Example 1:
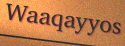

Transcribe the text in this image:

Waaqayyos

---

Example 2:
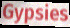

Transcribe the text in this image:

Gypsies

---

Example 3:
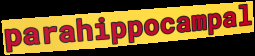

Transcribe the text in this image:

parahippocampal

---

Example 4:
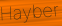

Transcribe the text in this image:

Hayber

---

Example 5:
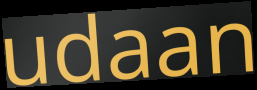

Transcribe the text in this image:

udaan